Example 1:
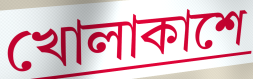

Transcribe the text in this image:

খোলাকাশে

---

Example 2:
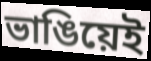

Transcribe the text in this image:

ভাঙিয়েই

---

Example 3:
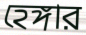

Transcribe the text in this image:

হেঙ্গার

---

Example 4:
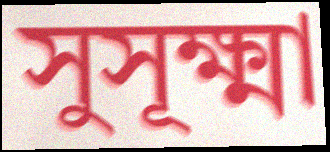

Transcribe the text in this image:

সুসূক্ষ্মা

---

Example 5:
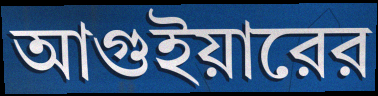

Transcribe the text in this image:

আগুইয়ারের